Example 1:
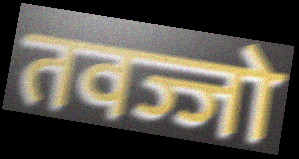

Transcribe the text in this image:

तवज्जो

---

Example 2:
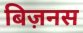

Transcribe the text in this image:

बिज़नस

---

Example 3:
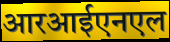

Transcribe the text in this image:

आरआईएनएल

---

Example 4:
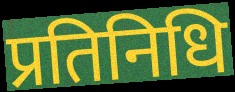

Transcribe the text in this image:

प्रतिनिधि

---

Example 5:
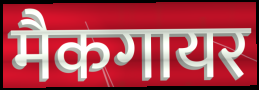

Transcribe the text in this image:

मैकगायर